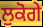
ਲੁਕੋਗੇ